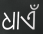
ଧାଏଁ